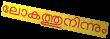
ലോകത്തുനിന്നും